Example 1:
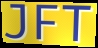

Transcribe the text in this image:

JFT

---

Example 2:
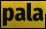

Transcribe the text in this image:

pala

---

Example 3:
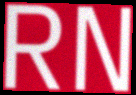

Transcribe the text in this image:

RN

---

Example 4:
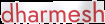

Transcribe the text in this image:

dharmesh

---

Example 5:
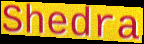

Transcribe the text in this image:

Shedra